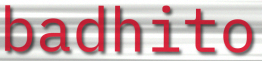
badhito